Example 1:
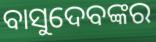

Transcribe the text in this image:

ବାସୁଦେବଙ୍କର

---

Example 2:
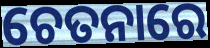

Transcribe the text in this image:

ଚେତନାରେ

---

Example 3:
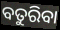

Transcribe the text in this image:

ବତୁରିବା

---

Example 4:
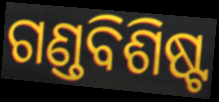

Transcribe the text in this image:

ଗଣ୍ଡବିଶିଷ୍ଟ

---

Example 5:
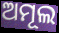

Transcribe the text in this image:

ଅମୂଲ